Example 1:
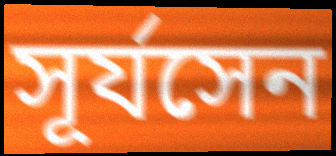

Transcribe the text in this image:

সূর্যসেন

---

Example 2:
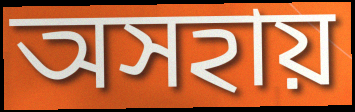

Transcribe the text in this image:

অসহায়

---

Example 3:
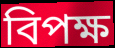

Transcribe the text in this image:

বিপক্ষ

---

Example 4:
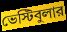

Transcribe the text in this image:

ভেস্টিবুলার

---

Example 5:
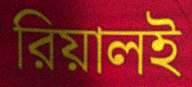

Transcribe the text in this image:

রিয়ালই